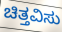
ಚಿತ್ತವಿಸು